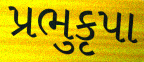
પ્રભુકૃપા